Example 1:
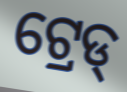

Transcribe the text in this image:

ଟ୍ରେଡ୍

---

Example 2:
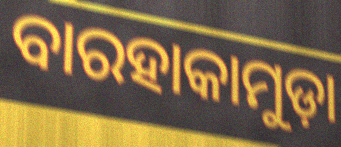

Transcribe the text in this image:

ବାରହାକାମୁଡ଼ା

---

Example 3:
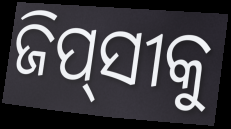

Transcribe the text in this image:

ଜିପ୍‌ସୀକୁ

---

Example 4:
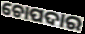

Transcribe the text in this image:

ଚୋପଦାର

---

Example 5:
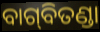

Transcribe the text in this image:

ବାଗ୍‌ବିତଣ୍ଡା